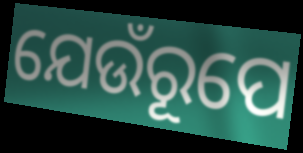
ଯେଉଁରୂପେ